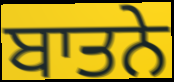
ਬਾਤਨੇ